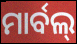
ମାର୍ବଲ୍